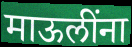
माऊलींना